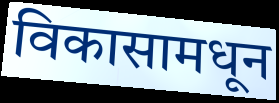
विकासामधून